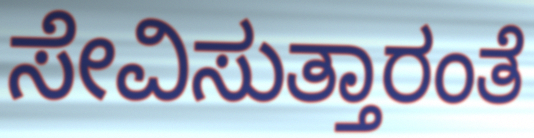
ಸೇವಿಸುತ್ತಾರಂತೆ